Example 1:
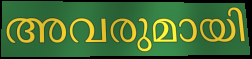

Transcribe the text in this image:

അവരുമായി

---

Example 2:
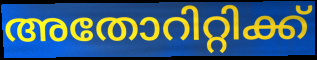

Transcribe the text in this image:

അതോറിറ്റിക്ക്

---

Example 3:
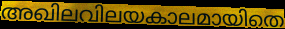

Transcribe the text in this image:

അഖിലവിലയകാലമായിതെ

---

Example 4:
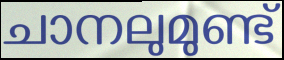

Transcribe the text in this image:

ചാനലുമുണ്ട്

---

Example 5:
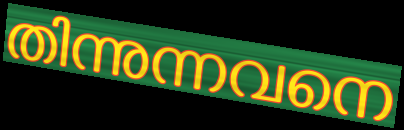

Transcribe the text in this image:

തിന്നുന്നവനെ